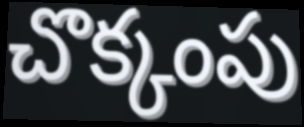
చొక్కంపు